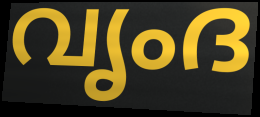
വൃംദ